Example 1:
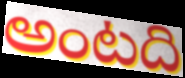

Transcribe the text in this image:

అంటది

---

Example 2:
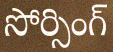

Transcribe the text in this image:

సోర్సింగ్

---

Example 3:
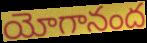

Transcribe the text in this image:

యోగానంద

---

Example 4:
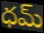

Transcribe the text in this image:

ధమ్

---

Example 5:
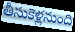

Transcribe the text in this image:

తీసుకెళ్లనుంది